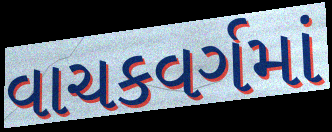
વાચકવર્ગમાં